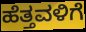
ಹೆತ್ತವಳಿಗೆ